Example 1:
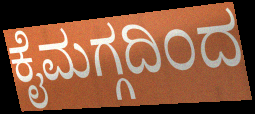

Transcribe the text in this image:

ಕೈಮಗ್ಗದಿಂದ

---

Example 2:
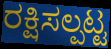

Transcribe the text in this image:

ರಕ್ಷಿಸಲ್ಪಟ್ಟ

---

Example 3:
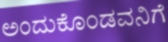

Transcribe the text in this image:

ಅಂದುಕೊಂಡವನಿಗೆ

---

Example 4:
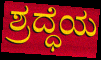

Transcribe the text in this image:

ಶ್ರದ್ಧೆಯ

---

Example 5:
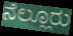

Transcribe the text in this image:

ನೆಲ್ಲೂರು